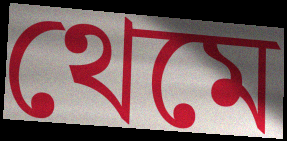
থেমে